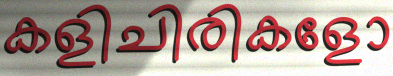
കളിചിരികളോ